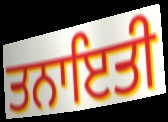
ਤਨਾਇਤੀ